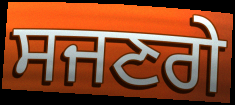
ਸਜਣਗੇ